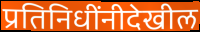
प्रतिनिधींनीदेखील